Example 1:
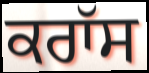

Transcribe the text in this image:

ਕਰਾੱਸ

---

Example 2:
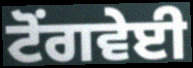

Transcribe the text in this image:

ਟੋਂਗਵੇਈ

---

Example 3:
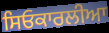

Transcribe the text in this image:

ਸਿਓਕਾਰਲੀਆ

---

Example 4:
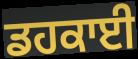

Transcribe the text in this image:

ਡਹਕਾਈ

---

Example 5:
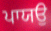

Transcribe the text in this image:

ਪਾਯਉ